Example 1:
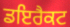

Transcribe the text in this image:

ਡਇਰੈਕਟ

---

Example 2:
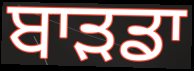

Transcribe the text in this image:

ਬਾੜਡਾ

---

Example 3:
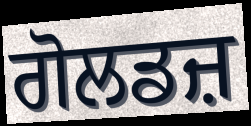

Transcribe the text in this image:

ਗੋਲਡਜ਼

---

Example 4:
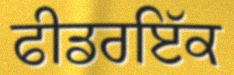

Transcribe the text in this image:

ਫੀਡਰਇੱਕ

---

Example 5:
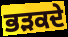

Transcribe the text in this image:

ਭੜਕਦੇ